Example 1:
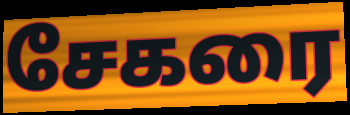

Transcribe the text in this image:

சேகரை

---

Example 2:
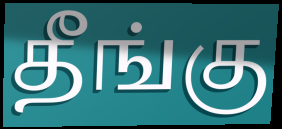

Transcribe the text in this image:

தீங்கு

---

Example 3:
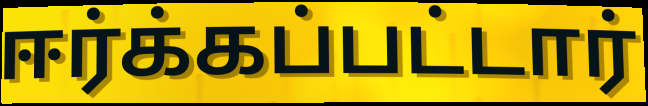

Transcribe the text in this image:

ஈர்க்கப்பட்டார்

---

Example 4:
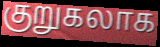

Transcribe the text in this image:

குறுகலாக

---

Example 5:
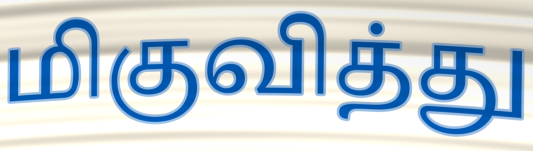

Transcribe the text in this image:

மிகுவித்து